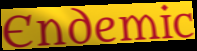
Endemic